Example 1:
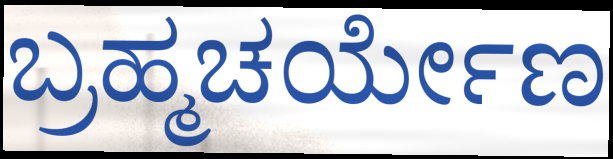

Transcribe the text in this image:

ಬ್ರಹ್ಮಚರ್ಯೇಣ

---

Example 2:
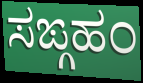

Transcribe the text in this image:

ಸಙ್ಗಹಂ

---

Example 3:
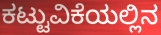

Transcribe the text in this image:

ಕಟ್ಟುವಿಕೆಯಲ್ಲಿನ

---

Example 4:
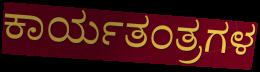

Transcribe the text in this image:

ಕಾರ್ಯತಂತ್ರಗಳ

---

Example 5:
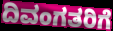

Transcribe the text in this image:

ದಿವಂಗತರಿಗೆ